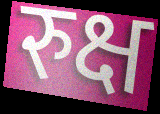
रुक्ष